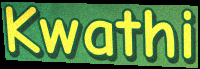
Kwathi